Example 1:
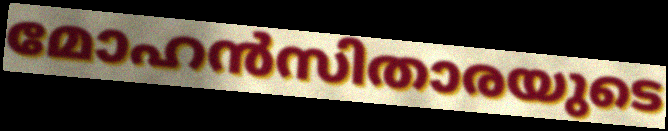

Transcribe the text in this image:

മോഹൻസിതാരയുടെ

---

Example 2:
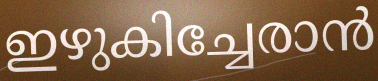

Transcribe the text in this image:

ഇഴുകിച്ചേരാൻ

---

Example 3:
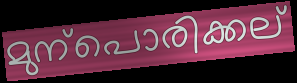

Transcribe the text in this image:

മുന്പൊരിക്കല്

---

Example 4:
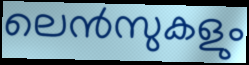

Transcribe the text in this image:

ലെൻസുകളും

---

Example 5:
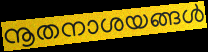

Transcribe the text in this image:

നൂതനാശയങ്ങൾ